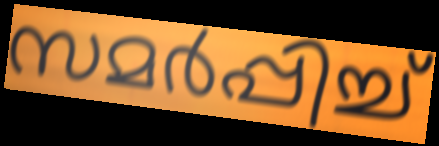
സമർപ്പിച്ച്